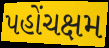
પહોંચક્ષમ